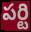
పర్టి